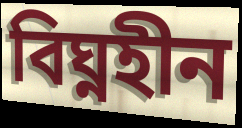
বিঘ্নহীন